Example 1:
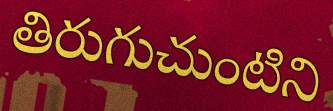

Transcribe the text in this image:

తిరుగుచుంటిని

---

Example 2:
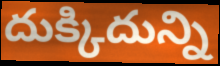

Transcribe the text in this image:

దుక్కిదున్ని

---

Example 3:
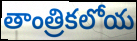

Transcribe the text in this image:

తాంత్రికలోయ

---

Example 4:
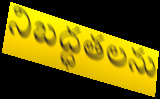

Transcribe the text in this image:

నిబద్ధతలను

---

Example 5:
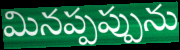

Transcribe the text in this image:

మినప్పప్పును